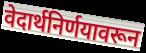
वेदार्थनिर्णयावरून